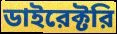
ডাইরেক্টরি